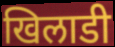
खिलाडी